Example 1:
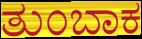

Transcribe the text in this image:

ತುಂಬಾಕ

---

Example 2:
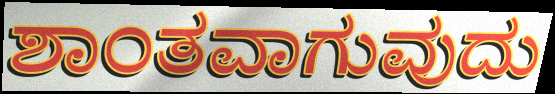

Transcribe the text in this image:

ಶಾಂತವಾಗುವುದು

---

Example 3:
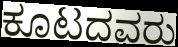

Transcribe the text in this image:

ಕೂಟದವರು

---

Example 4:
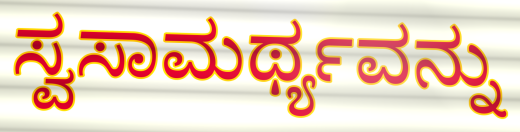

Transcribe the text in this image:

ಸ್ವಸಾಮರ್ಥ್ಯವನ್ನು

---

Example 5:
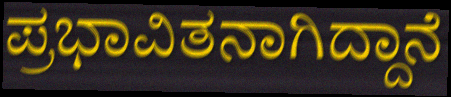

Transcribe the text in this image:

ಪ್ರಭಾವಿತನಾಗಿದ್ದಾನೆ